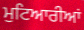
ਮੁਟਿਆਰੀਆਂ